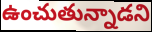
ఉంచుతున్నాడని